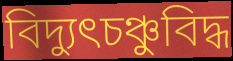
বিদ্যুৎচঞ্চুবিদ্ধ